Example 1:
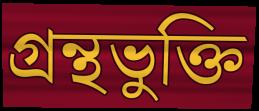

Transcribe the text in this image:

গ্রন্থভুক্তি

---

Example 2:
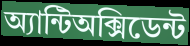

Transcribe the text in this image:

অ্যান্টিঅক্সিডেন্ট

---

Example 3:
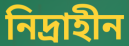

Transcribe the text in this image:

নিদ্রাহীন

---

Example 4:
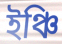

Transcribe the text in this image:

ইঞ্চি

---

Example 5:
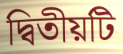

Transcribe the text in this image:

দ্বিতীয়টি